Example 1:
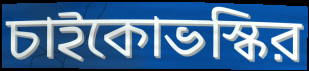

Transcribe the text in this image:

চাইকোভস্কির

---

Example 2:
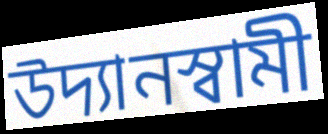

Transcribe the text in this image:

উদ্যানস্বামী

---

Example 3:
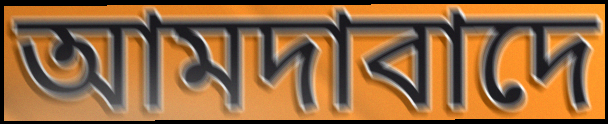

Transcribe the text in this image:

আমদাবাদে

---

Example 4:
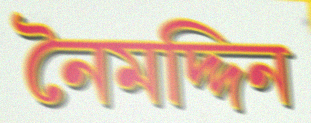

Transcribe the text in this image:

নৈমদ্দিন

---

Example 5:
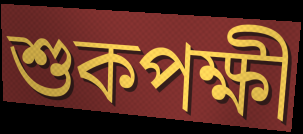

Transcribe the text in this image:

শুকপক্ষী